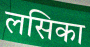
लसिका